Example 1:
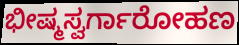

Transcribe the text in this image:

ಭೀಷ್ಮಸ್ವರ್ಗಾರೋಹಣ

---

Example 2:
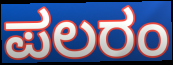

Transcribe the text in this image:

ಪಲರಂ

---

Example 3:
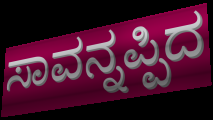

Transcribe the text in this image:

ಸಾವನ್ನಪ್ಪಿದ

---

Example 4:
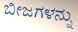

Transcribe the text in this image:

ಬೀಜಗಳನ್ನು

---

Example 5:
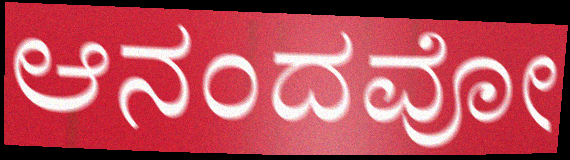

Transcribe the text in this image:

ಆನಂದವೋ